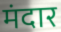
मंदार